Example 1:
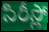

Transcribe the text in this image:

సిరీస్లో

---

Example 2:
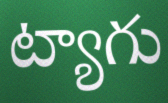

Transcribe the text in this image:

ట్యాగు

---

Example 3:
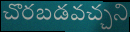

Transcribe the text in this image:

చొరబడవచ్చని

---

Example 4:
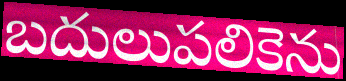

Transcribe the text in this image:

బదులుపలికెను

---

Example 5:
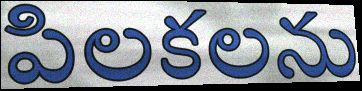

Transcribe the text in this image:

పిలకలను